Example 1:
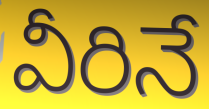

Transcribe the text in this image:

వీరినే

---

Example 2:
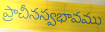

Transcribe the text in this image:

ప్రాచీనస్వభావము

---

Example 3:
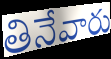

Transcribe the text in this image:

తినేవారు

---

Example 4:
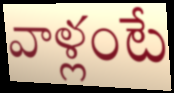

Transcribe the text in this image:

వాళ్లంటే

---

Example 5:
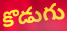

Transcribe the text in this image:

కొడుగు